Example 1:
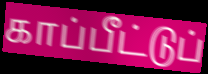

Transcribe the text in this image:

காப்பீட்டுப்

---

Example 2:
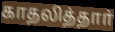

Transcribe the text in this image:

காதலித்தார்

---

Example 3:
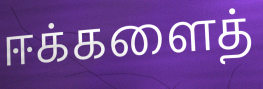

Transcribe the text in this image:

ஈக்களைத்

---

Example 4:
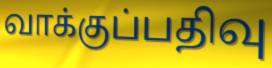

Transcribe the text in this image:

வாக்குப்பதிவு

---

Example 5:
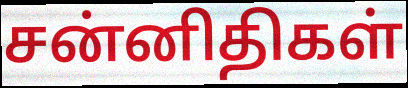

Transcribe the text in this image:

சன்னிதிகள்